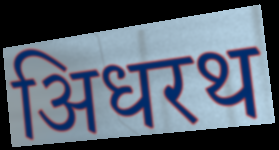
अिधरथ